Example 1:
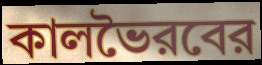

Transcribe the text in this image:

কালভৈরবের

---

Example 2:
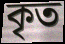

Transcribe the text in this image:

কৃত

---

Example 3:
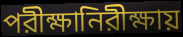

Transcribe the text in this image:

পরীক্ষানিরীক্ষায়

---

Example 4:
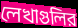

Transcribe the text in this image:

লেখাগুলির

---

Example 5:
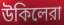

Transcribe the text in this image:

উকিলেরা